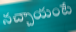
నచ్చాయంటే